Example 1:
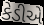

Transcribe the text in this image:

કેડીએ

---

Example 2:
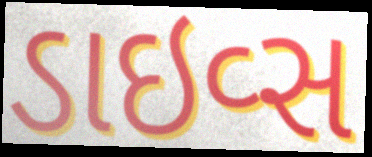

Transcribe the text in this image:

ડાઇવ્સ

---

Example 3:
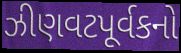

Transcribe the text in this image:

ઝીણવટપૂર્વકનો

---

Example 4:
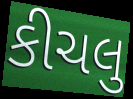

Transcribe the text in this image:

કીચલુ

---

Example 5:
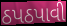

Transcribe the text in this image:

ઠપઠપાવી